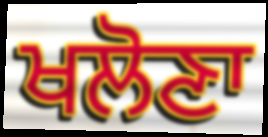
ਖਲੋਣਾ